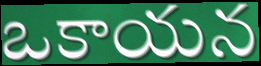
ఒకాయన